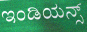
ಇಂಡಿಯನ್ಸ್